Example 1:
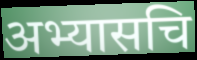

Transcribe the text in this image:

अभ्यासचि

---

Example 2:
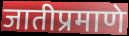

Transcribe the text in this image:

जातीप्रमाणे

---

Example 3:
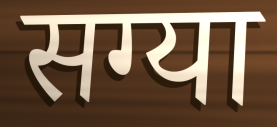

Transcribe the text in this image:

सग्या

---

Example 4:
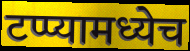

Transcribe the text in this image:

टप्प्यामध्येच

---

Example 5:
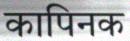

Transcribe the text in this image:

कापिनक